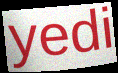
yedi